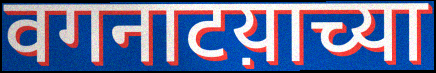
वगनाटय़ाच्या